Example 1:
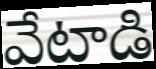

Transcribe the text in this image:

వేటాడి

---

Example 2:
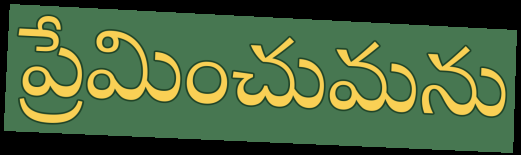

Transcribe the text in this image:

ప్రేమించుమను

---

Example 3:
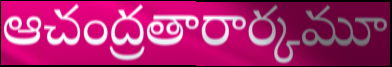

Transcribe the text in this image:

ఆచంద్రతారార్కమూ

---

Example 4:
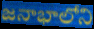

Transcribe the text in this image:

జనాభాలోని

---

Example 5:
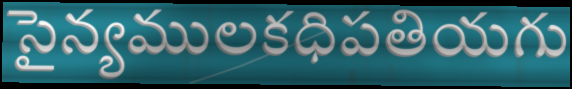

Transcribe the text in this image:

సైన్యములకధిపతియగు